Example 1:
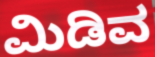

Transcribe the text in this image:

ಮಿಡಿವ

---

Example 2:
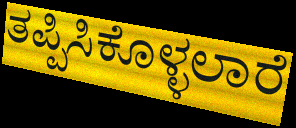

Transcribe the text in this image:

ತಪ್ಪಿಸಿಕೊಳ್ಳಲಾರೆ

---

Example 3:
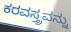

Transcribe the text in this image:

ಕರವಸ್ತ್ರವನ್ನು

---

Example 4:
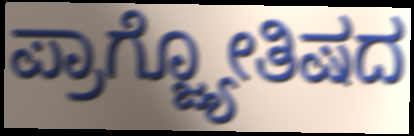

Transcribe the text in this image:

ಪ್ರಾಗ್ಜ್ಯೋತಿಷದ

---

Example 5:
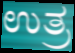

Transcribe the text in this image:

ಉತ್ರ